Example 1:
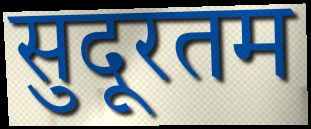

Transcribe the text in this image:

सुदूरतम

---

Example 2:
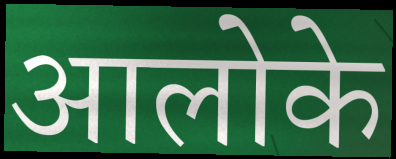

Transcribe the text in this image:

आलोके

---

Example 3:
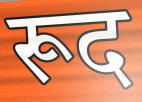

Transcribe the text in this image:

रूद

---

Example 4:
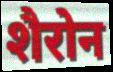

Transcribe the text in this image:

शैरोन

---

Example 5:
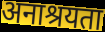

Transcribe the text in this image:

अनाश्रयता